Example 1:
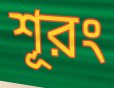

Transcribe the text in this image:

শূরং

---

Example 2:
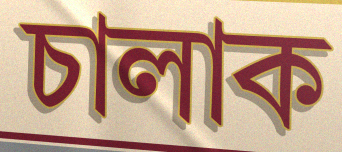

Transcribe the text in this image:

চালাক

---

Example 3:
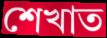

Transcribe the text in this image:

শেখাত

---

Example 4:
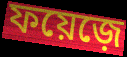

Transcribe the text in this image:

ফয়েজ়ে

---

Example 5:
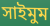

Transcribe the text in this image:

সাইমুম